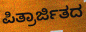
ಪಿತ್ರಾರ್ಜಿತದ